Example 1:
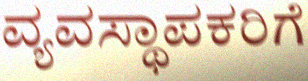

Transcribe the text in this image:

ವ್ಯವಸ್ಥಾಪಕರಿಗೆ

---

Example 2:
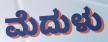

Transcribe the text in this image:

ಮೆದುಳು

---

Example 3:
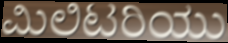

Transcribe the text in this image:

ಮಿಲಿಟರಿಯು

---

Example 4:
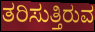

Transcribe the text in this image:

ತರಿಸುತ್ತಿರುವ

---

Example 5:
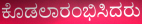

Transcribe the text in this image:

ಕೊಡಲಾರಂಭಿಸಿದರು